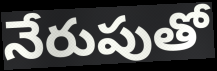
నేరుపుతో